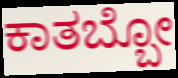
ಕಾತಬ್ಬೋ